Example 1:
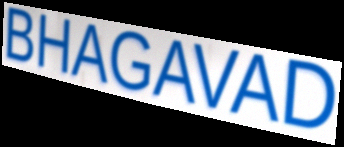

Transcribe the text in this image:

BHAGAVAD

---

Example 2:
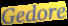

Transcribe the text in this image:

Gedore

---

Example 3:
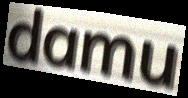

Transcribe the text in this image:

damu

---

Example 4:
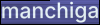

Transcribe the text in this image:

manchiga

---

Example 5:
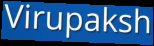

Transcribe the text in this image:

Virupaksh